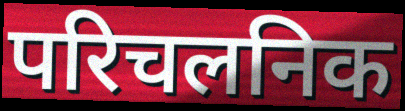
परिचलनिक